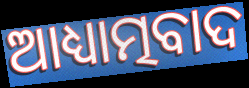
ଆଧ୍ୟାତ୍ମବାଦ